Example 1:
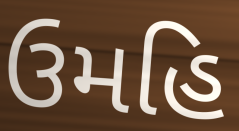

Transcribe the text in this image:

ઉમહિ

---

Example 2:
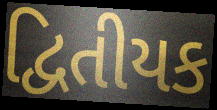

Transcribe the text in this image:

દ્વિતીયક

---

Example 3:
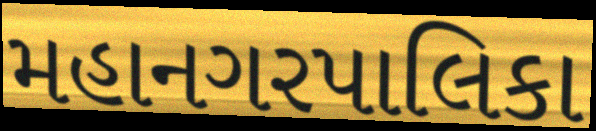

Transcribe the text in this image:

મહાનગરપાલિકા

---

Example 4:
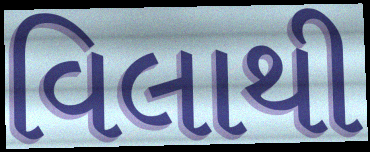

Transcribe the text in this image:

વિલાથી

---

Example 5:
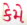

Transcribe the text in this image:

કેમે